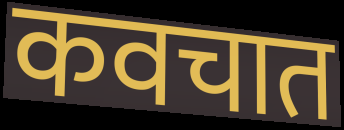
कवचात